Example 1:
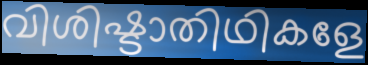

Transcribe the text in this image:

വിശിഷ്ടാതിഥികളേ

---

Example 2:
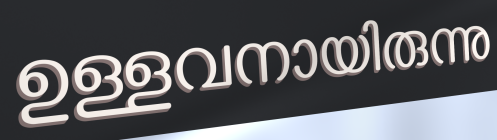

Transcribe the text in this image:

ഉള്ളവനായിരുന്നു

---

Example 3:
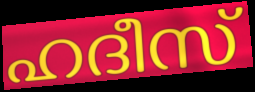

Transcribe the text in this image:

ഹദീസ്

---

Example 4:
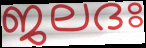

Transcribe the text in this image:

ജലദഃ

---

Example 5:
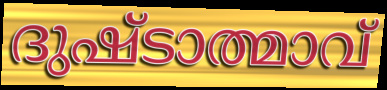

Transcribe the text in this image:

ദുഷ്ടാത്മാവ്